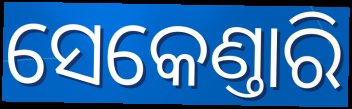
ସେକେଣ୍ତାରି